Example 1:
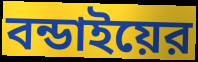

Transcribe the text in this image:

বন্ডাইয়ের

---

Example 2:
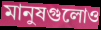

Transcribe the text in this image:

মানুষগুলোও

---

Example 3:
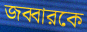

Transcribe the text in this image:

জব্বারকে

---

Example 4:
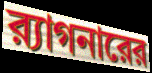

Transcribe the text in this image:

র‍্যাগনারের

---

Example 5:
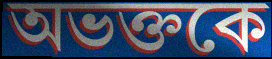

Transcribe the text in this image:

অভক্তকে